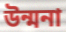
উন্মনা